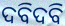
ଦବିଦବି